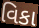
વિકા